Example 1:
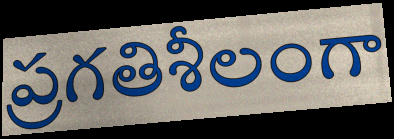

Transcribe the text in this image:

ప్రగతిశీలంగా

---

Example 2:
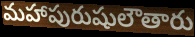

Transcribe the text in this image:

మహాపురుషులౌతారు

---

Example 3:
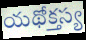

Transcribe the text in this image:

యథోక్తస్య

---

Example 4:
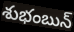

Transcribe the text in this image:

శుభంబున్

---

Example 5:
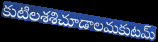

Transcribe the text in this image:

కుటిలశశిచూడాలమకుటమ్